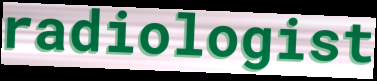
radiologist